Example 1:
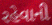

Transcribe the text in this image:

રહેવાની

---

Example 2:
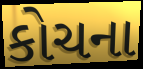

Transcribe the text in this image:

કોચના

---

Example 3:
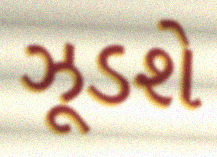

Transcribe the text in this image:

ઝૂડશે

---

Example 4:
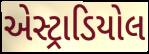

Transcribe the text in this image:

એસ્ટ્રાડિયોલ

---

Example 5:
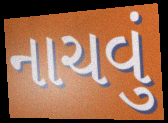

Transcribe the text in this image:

નાચવું